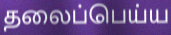
தலைப்பெய்ய